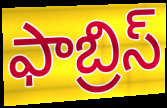
ఫాబ్రిస్